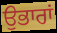
ਉਭਾਰਾਂ